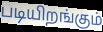
படியிறங்கும்